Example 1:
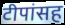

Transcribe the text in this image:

टीपांसह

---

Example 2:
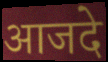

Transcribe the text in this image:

आजदे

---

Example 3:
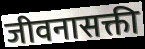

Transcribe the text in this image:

जीवनासक्ती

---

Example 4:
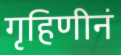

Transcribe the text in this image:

गृहिणीनं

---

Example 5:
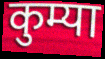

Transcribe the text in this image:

कुम्या